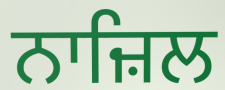
ਨਾਜ਼ਿਲ